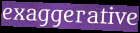
exaggerative